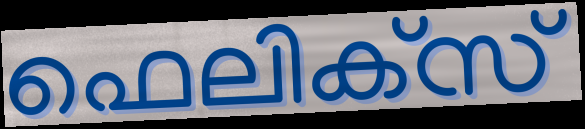
ഫെലിക്‌സ്